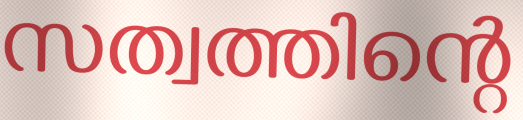
സത്വത്തിന്റെ